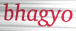
bhagyo